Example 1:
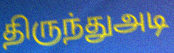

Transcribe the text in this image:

திருந்துஅடி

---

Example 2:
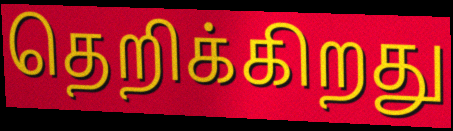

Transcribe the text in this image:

தெறிக்கிறது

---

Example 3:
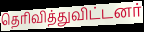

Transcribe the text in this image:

தெரிவித்துவிட்டனர்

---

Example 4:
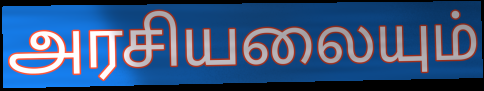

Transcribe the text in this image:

அரசியலையும்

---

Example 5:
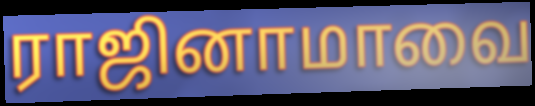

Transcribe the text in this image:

ராஜினாமாவை